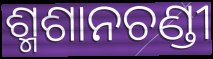
ଶ୍ମଶାନଚଣ୍ଡୀ